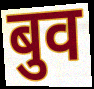
बुव